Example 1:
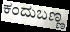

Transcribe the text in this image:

ಕಂದುಬಣ್ಣ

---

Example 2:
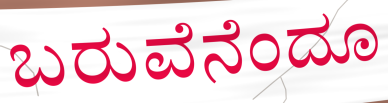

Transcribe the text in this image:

ಬರುವೆನೆಂದೂ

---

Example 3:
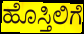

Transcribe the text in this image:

ಹೊಸ್ತಿಲಿಗೆ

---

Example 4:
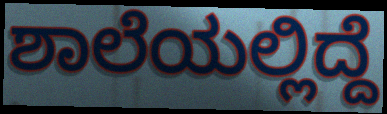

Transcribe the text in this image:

ಶಾಲೆಯಲ್ಲಿದ್ದೆ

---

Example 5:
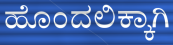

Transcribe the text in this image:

ಹೊಂದಲಿಕ್ಕಾಗಿ